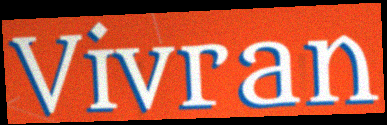
Vivran